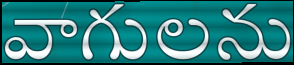
వాగులను